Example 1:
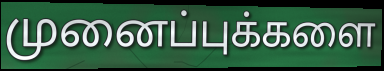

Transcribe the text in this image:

முனைப்புக்களை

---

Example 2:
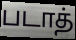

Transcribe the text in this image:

படாத்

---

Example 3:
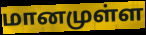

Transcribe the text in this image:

மானமுள்ள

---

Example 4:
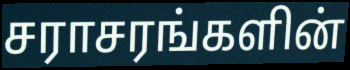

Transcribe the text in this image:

சராசரங்களின்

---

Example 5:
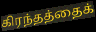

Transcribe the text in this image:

கிரந்தத்தைக்